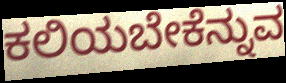
ಕಲಿಯಬೇಕೆನ್ನುವ